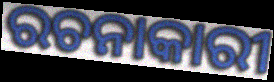
ରଚନାକାରୀ